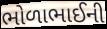
ભોળાભાઈની